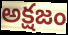
అక్షజం